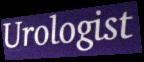
Urologist